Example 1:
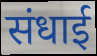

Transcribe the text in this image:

संधाई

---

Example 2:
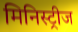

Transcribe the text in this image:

मिनिस्ट्रीज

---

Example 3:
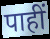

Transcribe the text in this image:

पाहीं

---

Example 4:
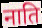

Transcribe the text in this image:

नाति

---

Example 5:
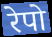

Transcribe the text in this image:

रेपो